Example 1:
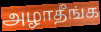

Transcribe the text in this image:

அழாதீங்க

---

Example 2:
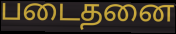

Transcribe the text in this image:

படைதனை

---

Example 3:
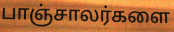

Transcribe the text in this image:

பாஞ்சாலர்களை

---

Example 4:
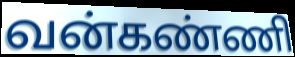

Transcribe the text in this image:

வன்கண்ணி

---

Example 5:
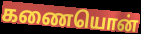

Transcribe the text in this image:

கணையொன்